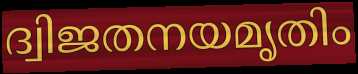
ദ്വിജതനയമൃതിം